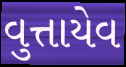
વુત્તાયેવ